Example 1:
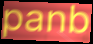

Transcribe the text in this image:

panb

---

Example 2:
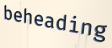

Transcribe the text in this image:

beheading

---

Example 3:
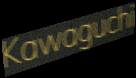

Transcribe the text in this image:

Kawaguchi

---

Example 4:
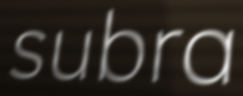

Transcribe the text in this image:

subra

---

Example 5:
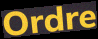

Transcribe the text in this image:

Ordre